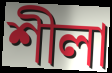
শীলা